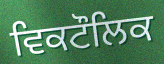
ਵਿਕਟੌਲਿਕ